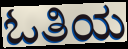
ಓತಿಯ